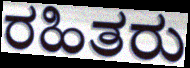
ರಹಿತರು